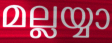
മല്ലയ്യാ